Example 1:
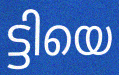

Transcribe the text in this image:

ട്ടിയെ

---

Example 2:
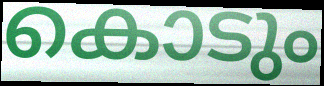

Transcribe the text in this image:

കൊടും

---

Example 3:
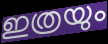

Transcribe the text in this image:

ഇത്രയും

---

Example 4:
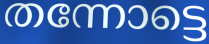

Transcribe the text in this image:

തന്നോട്ടെ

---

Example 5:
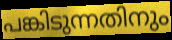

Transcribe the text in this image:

പങ്കിടുന്നതിനും